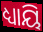
ଧ୍ୟାୟି